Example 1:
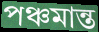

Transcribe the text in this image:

পঞ্চমান্ত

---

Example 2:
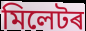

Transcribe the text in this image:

মিলেটৰ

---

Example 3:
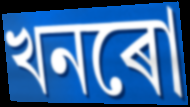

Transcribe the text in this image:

খনৰো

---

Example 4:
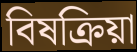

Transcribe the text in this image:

বিষক্ৰিয়া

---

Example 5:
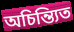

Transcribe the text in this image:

অচিন্ত্যিত